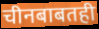
चीनबाबतही